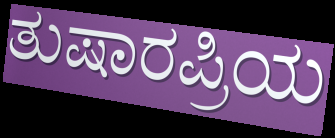
ತುಷಾರಪ್ರಿಯ